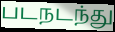
படநடந்து